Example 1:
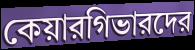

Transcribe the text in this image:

কেয়ারগিভারদের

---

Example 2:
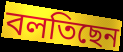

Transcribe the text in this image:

বলতিছেন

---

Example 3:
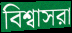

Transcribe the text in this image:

বিশ্বাসরা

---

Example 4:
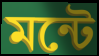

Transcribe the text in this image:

মন্টে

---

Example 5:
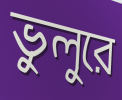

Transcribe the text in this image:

ভুলুরে